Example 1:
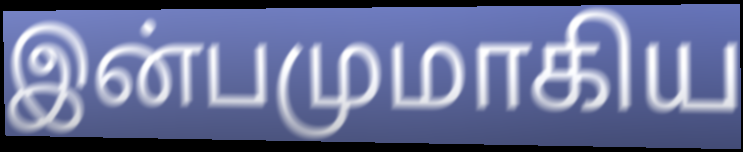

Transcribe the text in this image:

இன்பமுமாகிய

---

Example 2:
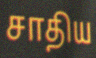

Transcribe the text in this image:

சாதிய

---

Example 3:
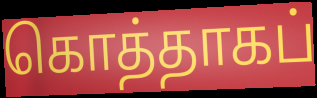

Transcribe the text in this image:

கொத்தாகப்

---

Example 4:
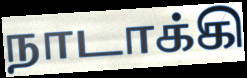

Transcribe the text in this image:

நாடாக்கி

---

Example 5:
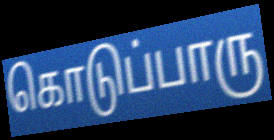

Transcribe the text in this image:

கொடுப்பாரு